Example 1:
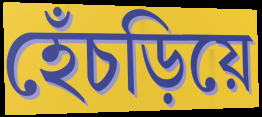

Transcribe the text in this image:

হেঁচড়িয়ে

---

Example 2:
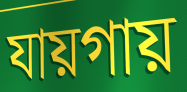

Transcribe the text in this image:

যায়গায়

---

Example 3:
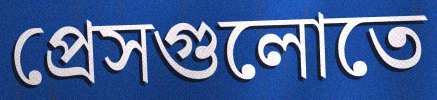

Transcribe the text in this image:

প্রেসগুলোতে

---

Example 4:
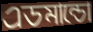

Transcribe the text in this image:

এডমান্ডো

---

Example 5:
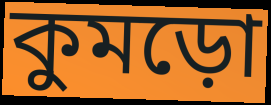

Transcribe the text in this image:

কুমড়ো